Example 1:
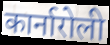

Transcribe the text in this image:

कार्नारोली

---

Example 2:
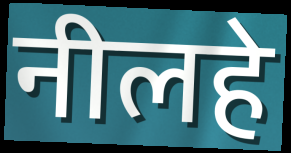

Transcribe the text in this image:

नीलहे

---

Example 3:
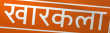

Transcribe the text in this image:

खारकला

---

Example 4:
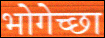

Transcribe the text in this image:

भोगेच्छा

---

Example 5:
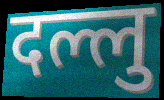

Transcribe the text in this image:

दल्लु